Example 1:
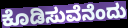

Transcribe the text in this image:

ಕೊಡಿಸುವೆನೆಂದು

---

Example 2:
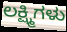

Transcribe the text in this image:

ಲಕ್ಷ್ಮಿಗಳು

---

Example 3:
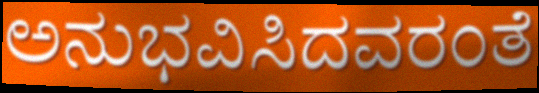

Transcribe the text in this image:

ಅನುಭವಿಸಿದವರಂತೆ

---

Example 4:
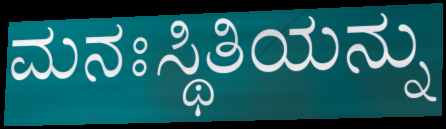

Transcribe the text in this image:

ಮನಃಸ್ಥಿತಿಯನ್ನು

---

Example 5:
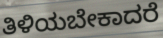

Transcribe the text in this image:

ತಿಳಿಯಬೇಕಾದರೆ